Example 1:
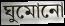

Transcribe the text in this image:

ঘুমোনো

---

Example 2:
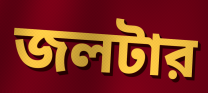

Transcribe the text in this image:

জলটার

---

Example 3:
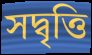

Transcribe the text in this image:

সদ্বৃত্তি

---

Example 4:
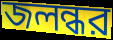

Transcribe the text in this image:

জলন্ধর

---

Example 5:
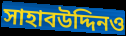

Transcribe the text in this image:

সাহাবউদ্দিনও